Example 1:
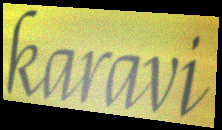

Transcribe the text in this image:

karavi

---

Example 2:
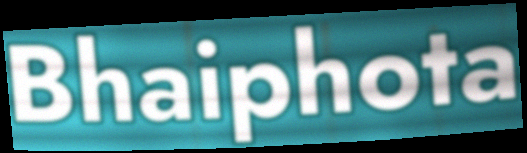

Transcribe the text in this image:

Bhaiphota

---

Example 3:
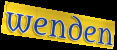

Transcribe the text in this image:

wenden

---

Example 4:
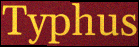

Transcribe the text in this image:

Typhus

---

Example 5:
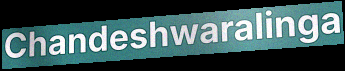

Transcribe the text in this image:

Chandeshwaralinga